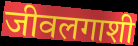
जीवलगाशी